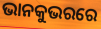
ଭାନକୁଭରରେ